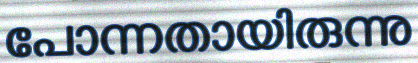
പോന്നതായിരുന്നു